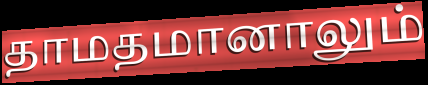
தாமதமானாலும்